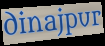
dinajpur